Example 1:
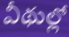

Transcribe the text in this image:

వీథుల్లో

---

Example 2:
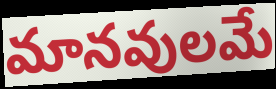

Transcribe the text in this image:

మానవులమే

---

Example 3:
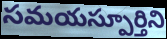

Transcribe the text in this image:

సమయస్పూర్తిని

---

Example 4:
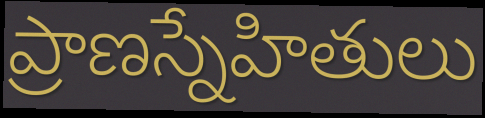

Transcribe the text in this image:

ప్రాణస్నేహితులు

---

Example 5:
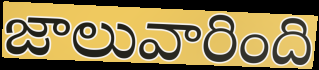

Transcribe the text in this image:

జాలువారింది